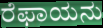
ರೆಫಾಯನು